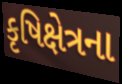
કૃષિક્ષેત્રના